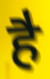
है